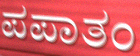
ಪಪಾತಂ